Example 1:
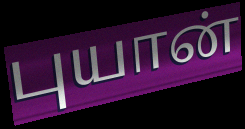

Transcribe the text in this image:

புயான்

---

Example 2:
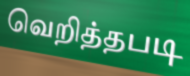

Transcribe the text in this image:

வெறித்தபடி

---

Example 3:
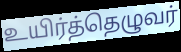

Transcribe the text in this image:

உயிர்த்தெழுவர்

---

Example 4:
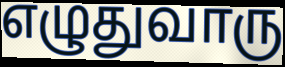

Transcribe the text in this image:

எழுதுவாரு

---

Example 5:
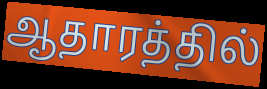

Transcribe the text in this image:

ஆதாரத்தில்